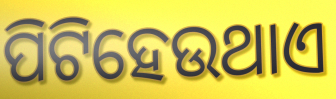
ପିଟିହେଉଥାଏ